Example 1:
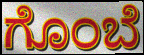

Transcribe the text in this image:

ಗೊಂಬೆ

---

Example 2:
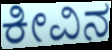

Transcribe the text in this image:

ಕೀವಿನ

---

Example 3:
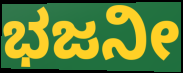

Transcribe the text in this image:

ಭಜನೀ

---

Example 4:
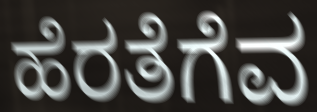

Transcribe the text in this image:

ಹೆರತೆಗೆವ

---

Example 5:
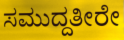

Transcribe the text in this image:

ಸಮುದ್ದತೀರೇ